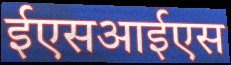
ईएसआईएस